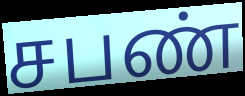
சபண்